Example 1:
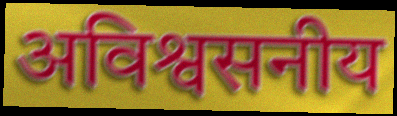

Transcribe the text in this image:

अविश्वसनीय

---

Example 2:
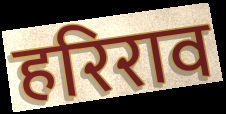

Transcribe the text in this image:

हरिराव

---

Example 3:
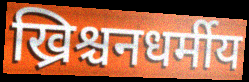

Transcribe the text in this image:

ख्रिश्चनधर्मीय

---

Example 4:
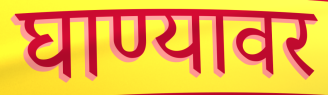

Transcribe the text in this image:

घाण्यावर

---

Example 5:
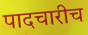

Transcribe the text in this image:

पादचारीच